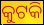
କୁଟକି